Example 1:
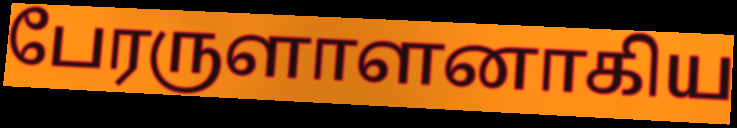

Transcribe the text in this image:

பேரருளாளனாகிய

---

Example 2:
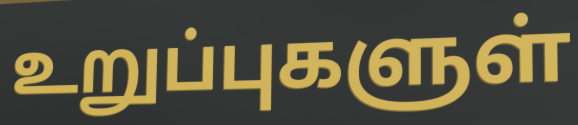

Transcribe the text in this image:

உறுப்புகளுள்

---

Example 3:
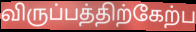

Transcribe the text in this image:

விருப்பத்திற்கேற்ப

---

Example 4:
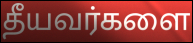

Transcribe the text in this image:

தீயவர்களை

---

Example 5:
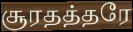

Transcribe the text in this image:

சூரதத்தரே